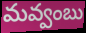
మవ్వంబు